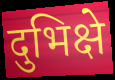
दुभिक्षे